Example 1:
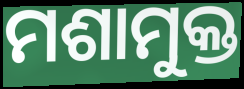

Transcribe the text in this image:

ମଶାମୁକ୍ତ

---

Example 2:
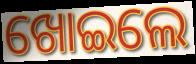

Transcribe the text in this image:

ଖୋଇଲେ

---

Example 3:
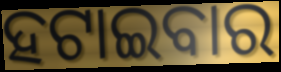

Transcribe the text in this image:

ହଟାଇବାର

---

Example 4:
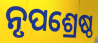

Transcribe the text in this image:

ନୃପଶ୍ରେଷ୍ଠ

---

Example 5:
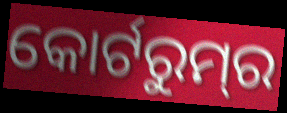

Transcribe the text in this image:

କୋର୍ଟରୁମ୍‌ର